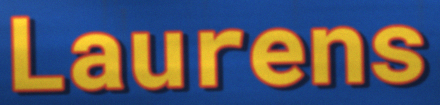
Laurens